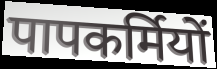
पापकर्मियों